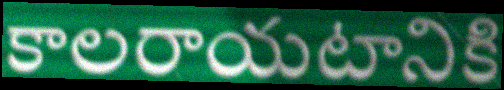
కాలరాయటానికి